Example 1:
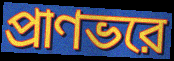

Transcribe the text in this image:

প্রাণভরে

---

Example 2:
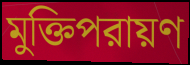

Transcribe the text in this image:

মুক্তিপরায়ণ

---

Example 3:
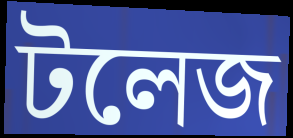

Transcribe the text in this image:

টলেজ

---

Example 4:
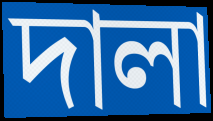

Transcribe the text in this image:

দালা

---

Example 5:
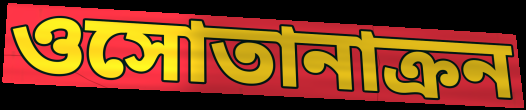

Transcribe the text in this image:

ওসোতানাক্রন